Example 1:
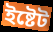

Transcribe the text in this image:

ইষ্টেট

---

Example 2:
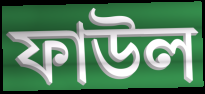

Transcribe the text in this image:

ফাউল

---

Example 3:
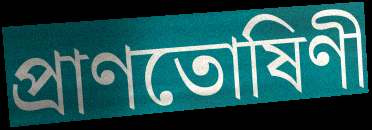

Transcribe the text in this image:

প্ৰাণতোষিণী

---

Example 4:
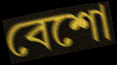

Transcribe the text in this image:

বেশো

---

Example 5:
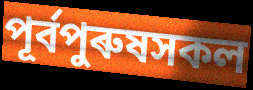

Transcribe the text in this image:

পূৰ্বপুৰুষসকল